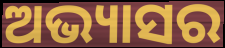
ଅଭ୍ୟାସର